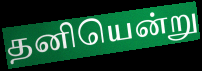
தனியென்று